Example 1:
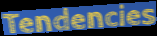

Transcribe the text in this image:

Tendencies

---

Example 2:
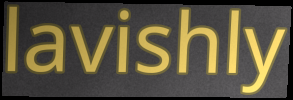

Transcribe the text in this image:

lavishly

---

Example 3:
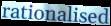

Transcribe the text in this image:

rationalised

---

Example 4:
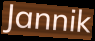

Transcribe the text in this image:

Jannik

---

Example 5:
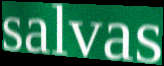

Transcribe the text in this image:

salvas